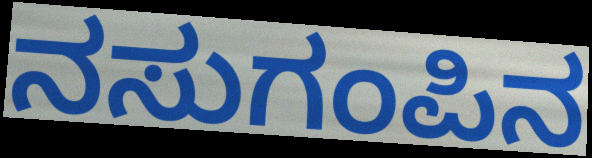
ನಸುಗಂಪಿನ